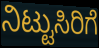
ನಿಟ್ಟುಸಿರಿಗೆ